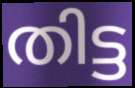
തിട്ട